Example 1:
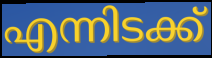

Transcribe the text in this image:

എന്നിടക്ക്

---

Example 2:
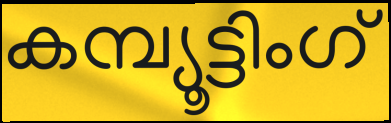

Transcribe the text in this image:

കമ്പ്യൂട്ടിംഗ്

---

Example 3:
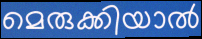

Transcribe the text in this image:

മെരുക്കിയാൽ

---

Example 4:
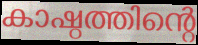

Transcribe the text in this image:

കാഷ്ഠത്തിന്റെ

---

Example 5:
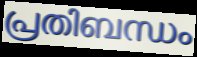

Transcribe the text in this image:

പ്രതിബന്ധം